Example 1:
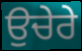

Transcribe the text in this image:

ਉਚੇਰੇ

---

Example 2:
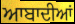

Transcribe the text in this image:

ਆਬਾਦੀਆਂ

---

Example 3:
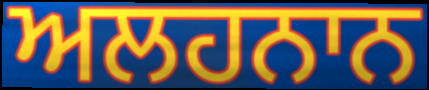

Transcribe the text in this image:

ਅਲਹਨਾਨ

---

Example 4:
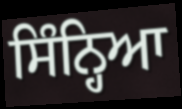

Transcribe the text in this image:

ਸਿੰਨ੍ਹਿਆ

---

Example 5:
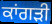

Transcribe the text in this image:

ਕਾਂਗੜੀ